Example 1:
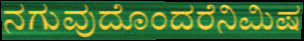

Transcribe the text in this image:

ನಗುವುದೊಂದರೆನಿಮಿಷ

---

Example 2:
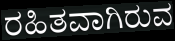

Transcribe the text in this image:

ರಹಿತವಾಗಿರುವ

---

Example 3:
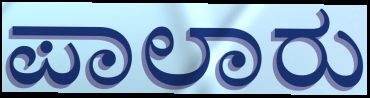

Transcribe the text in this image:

ಪಾಲಾರು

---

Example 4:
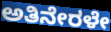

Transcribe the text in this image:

ಅತಿನೇರಳೇ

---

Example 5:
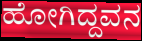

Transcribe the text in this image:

ಹೋಗಿದ್ದವನ